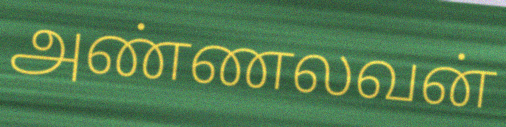
அண்ணலவன்